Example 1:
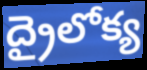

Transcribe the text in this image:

ద్రైలోక్య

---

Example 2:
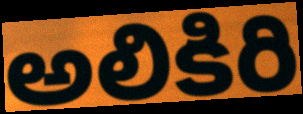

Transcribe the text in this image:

అలికిరి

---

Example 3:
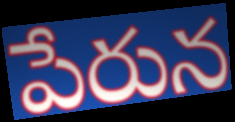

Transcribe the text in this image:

పేరున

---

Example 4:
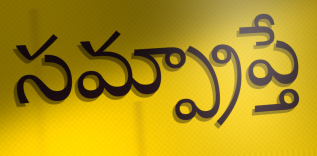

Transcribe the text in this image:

సమ్ప్రాప్తే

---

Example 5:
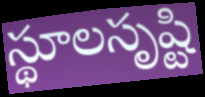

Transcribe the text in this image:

స్థూలసృష్టి